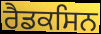
ਰੈਡਕਸਿਨ